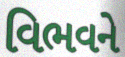
વિભવને